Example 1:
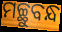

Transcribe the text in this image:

ମଚ୍ଛୁବନ୍ଧ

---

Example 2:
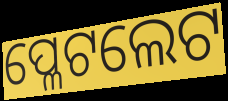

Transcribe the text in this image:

ପ୍ଳେଟଲେଟ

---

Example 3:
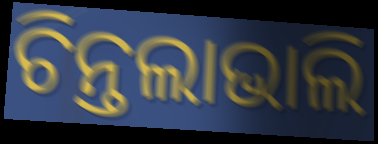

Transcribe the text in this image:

ଚିନ୍ତଲାଭାଲି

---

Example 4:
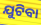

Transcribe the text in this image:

ଯୁଟିବା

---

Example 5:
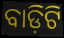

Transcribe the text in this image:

ବାଡ଼ିଟି